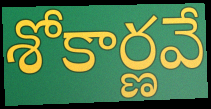
శోకార్ణవే